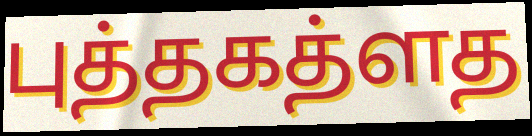
புத்தகத்ளத